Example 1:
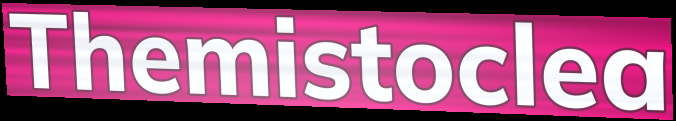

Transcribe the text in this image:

Themistoclea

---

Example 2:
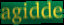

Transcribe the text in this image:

agidde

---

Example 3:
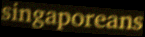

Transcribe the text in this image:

singaporeans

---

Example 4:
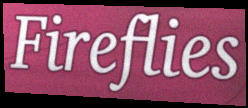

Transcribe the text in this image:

Fireflies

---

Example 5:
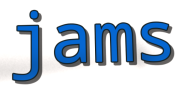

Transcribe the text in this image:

jams